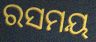
ରସମୟ